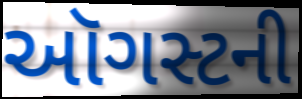
ઑગસ્ટની